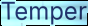
Temper